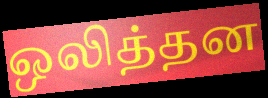
ஒலித்தன